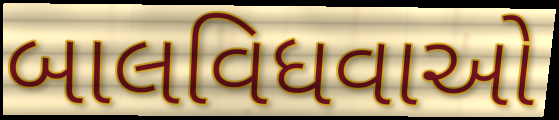
બાલવિધવાઓ